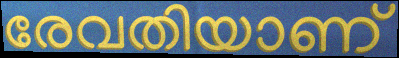
രേവതിയാണ്